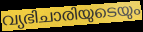
വ്യഭിചാരിയുടെയും